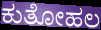
ಕುತೋಹಲ